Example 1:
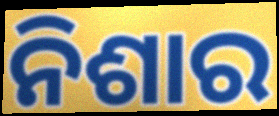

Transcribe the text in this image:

ନିଶାର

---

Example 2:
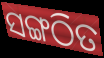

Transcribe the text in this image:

ସଙ୍ଗଠିତ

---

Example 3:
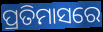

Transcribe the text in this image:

ପ୍ରତିମାସରେ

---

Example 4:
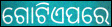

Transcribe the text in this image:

ଗୋଟିଏପରେ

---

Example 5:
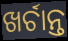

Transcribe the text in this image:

ଖର୍ଚାନ୍ତ